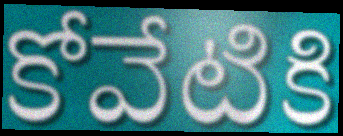
కోవేటికి